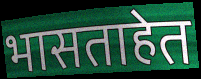
भासताहेत